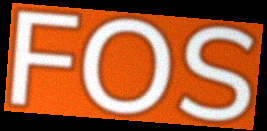
FOS